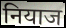
नियाज